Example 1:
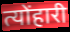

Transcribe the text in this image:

त्योंहारी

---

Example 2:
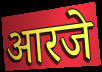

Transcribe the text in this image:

आरजे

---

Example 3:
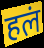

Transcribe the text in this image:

हलं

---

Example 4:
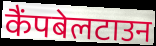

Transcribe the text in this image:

कैंपबेलटाउन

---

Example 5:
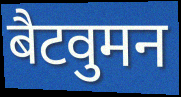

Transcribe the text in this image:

बैटवुमन